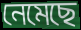
নেমেছে